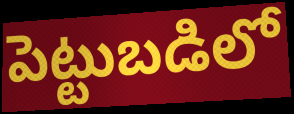
పెట్టుబడిలో